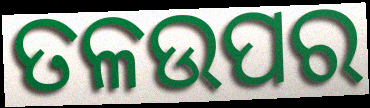
ତଳଉପର